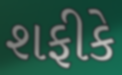
શફીકે